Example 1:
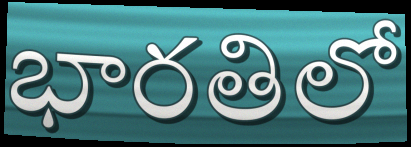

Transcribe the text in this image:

భారతిలో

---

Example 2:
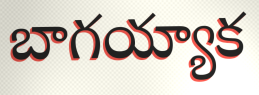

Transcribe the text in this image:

బాగయ్యాక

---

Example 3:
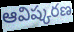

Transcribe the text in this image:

ఆవిష్కరణ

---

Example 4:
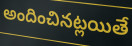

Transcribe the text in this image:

అందించినట్లయితే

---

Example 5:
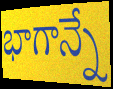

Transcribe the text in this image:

భాగాన్నే